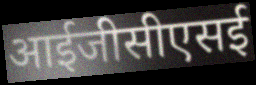
आईजीसीएसई